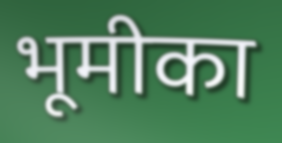
भूमीका